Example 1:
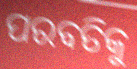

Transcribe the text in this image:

ପରବତିକୁ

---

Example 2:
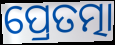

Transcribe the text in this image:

ପ୍ରେତତ୍ମା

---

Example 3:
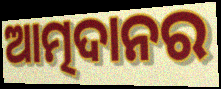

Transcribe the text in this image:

ଆତ୍ମଦାନର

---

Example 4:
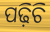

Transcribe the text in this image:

ପଢ଼ିଚି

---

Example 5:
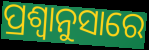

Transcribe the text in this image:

ପ୍ରଶ୍ବାନୁସାରେ